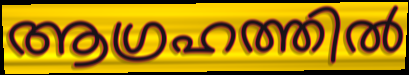
ആഗ്രഹത്തിൽ